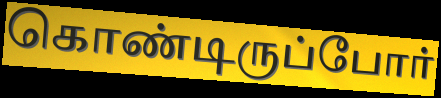
கொண்டிருப்போர்